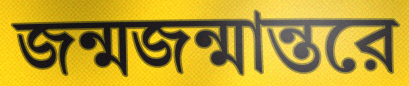
জন্মজন্মান্তরে